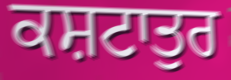
ਕਸ਼ਟਾਤੁਰ